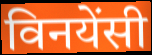
विनयेंसी